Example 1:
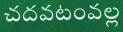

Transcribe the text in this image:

చదవటంవల్ల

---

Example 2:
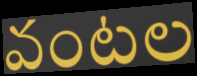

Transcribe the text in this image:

వంటల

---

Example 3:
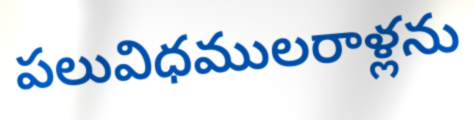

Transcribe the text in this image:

పలువిధములరాళ్లను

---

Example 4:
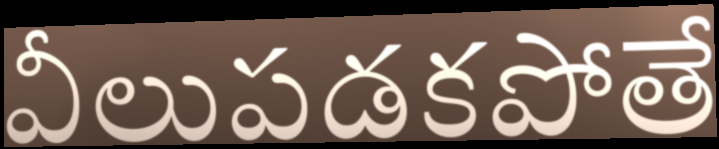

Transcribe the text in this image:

వీలుపడకపోతే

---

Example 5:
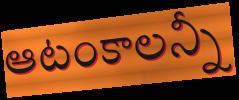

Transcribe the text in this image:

ఆటంకాలన్నీ